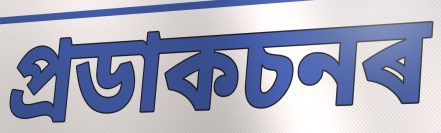
প্ৰডাকচনৰ